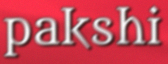
pakshi